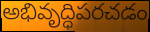
అభివృద్ధిపరచడం